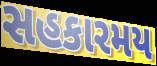
સહકારમય